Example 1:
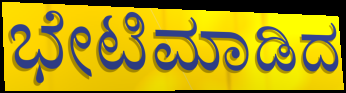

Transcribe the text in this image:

ಭೇಟಿಮಾಡಿದ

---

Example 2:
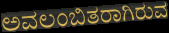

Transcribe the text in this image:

ಅವಲಂಬಿತರಾಗಿರುವ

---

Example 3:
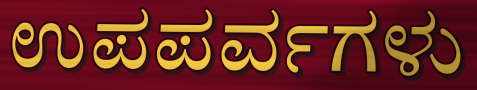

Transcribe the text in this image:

ಉಪಪರ್ವಗಳು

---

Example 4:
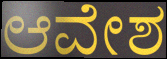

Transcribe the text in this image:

ಆವೇಶ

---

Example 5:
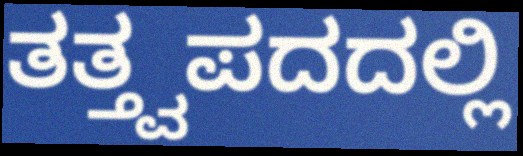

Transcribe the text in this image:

ತತ್ತ್ವಪದದಲ್ಲಿ